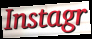
Instagr